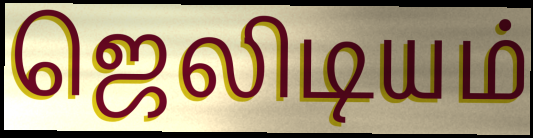
ஜெலிடியம்